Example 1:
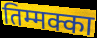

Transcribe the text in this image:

तिम्मक्का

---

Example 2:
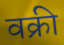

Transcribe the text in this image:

वक्री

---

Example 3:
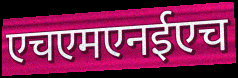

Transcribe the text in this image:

एचएमएनईएच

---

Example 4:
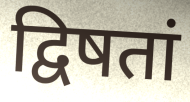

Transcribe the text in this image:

द्विषतां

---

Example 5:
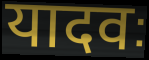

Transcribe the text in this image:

यादवः